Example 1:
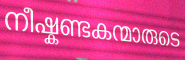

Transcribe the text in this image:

നീഷ്കണ്ടകന്മാരുടെ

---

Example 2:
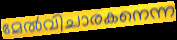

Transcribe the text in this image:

മേൽവിചാരകനെന്ന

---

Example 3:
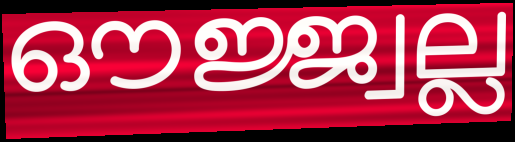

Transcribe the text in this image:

ഔജ്ജ്വല്ല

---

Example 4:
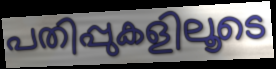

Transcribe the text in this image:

പതിപ്പുകളിലൂടെ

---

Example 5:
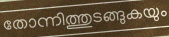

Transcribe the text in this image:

തോന്നിത്തുടങ്ങുകയും